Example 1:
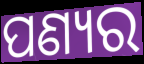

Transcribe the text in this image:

ପଣ୍ୟର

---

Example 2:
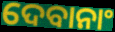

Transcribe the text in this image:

ଦେବାନାଂ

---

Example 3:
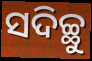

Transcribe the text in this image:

ସଦିଚ୍ଛୁ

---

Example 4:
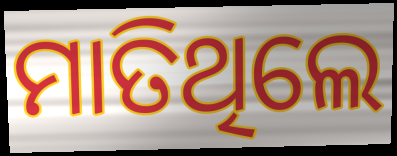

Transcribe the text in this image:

ମାତିଥିଲେ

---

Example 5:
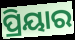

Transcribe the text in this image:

ପ୍ରିୟାର